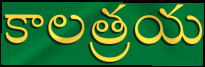
కాలత్రయ